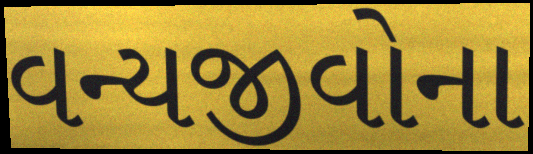
વન્યજીવોના